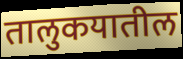
तालुकयातील